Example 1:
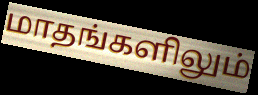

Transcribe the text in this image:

மாதங்களிலும்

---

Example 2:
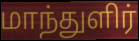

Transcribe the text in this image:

மாந்துளிர்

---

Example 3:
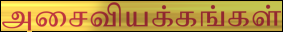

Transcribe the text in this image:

அசைவியக்கங்கள்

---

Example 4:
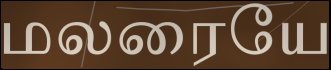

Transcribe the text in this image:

மலரையே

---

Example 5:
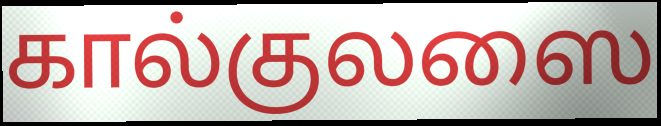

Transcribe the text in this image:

கால்குலஸை